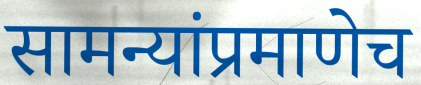
सामन्यांप्रमाणेच